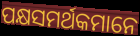
ପକ୍ଷସମର୍ଥକମାନେ